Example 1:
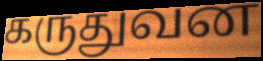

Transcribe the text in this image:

கருதுவன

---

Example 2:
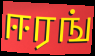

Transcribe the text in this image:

ஈரங்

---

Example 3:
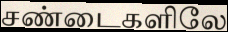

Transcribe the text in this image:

சண்டைகளிலே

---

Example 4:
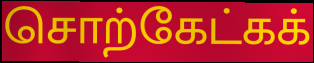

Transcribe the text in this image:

சொற்கேட்கக்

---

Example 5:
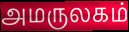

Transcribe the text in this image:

அமருலகம்